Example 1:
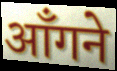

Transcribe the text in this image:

आँगने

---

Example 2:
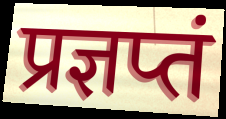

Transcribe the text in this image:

प्रज्ञप्तं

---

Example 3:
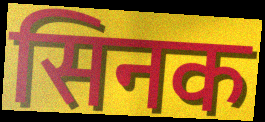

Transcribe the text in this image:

सिनक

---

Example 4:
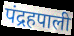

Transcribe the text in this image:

पंद्रहपाली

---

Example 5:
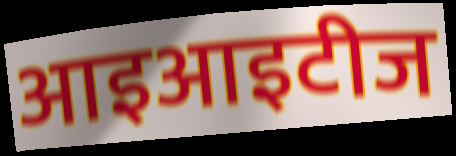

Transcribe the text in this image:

आइआइटीज